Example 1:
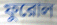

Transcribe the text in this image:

ফুরোল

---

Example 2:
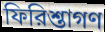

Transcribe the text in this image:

ফিরিশ্তাগণ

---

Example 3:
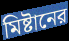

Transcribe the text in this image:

মিষ্টানের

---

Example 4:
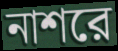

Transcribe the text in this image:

নাশরে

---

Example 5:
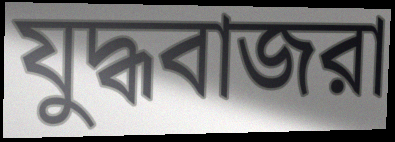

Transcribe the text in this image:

যুদ্ধবাজরা